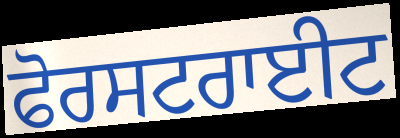
ਫੋਰਸਟਰਾਈਟ